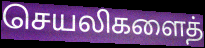
செயலிகளைத்